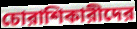
চোরাশিকারীদের